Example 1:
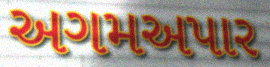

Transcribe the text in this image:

અગમઅપાર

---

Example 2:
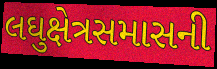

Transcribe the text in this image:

લઘુક્ષેત્રસમાસની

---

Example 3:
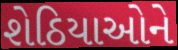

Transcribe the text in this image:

શેઠિયાઓને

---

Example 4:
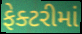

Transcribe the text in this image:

ફેક્ટરીમાં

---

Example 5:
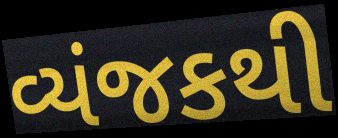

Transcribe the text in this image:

વ્યંજકથી